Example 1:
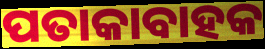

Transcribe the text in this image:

ପତାକାବାହକ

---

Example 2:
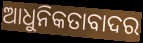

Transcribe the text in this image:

ଆଧୁନିକତାବାଦର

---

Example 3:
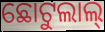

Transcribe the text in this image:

ଛୋଟୁଲାଲ୍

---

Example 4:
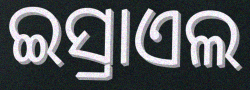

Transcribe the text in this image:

ଇସ୍ରାଏଲ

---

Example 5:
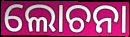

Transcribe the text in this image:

ଲୋଚନା